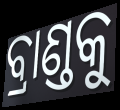
ବ୍ରାଣ୍ଡକୁ